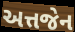
અત્તજેન